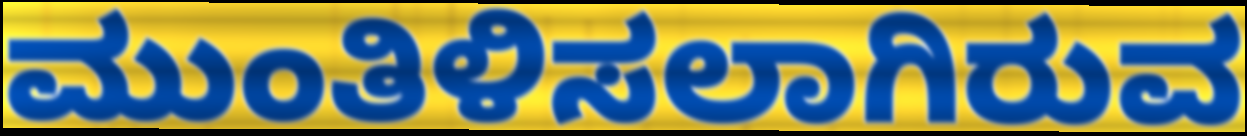
ಮುಂತಿಳಿಸಲಾಗಿರುವ